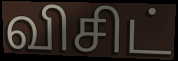
விசிட்